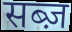
सब्ज़